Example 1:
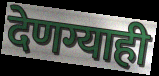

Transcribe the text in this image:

देणग्याही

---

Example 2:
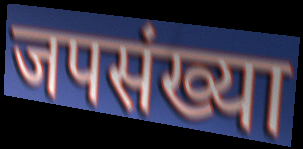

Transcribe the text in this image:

जपसंख्या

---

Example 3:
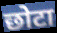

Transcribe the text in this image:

छोटा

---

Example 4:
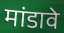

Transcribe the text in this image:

मांडावे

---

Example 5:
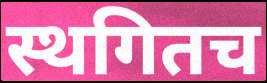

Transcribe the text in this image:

स्थगितच